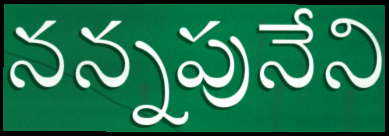
నన్నపునేని